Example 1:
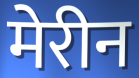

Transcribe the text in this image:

मेरीन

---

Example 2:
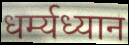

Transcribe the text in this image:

धर्म्यध्यान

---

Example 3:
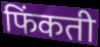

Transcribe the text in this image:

फिंकती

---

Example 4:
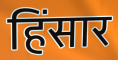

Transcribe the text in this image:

हिंसार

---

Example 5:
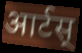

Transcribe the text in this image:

आर्टस्